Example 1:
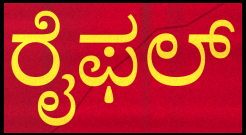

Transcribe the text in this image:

ರೈಫಲ್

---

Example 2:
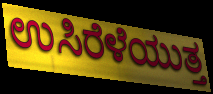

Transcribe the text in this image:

ಉಸಿರೆಳೆಯುತ್ತ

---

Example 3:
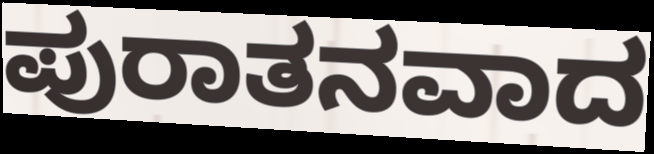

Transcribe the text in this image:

ಪುರಾತನವಾದ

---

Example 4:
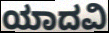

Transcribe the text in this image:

ಯಾದವಿ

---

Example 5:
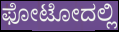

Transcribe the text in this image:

ಫೋಟೋದಲ್ಲಿ